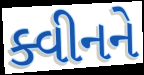
ક્વીનને